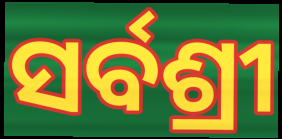
ସର୍ବଶ୍ରୀ